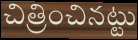
చిత్రించినట్టు